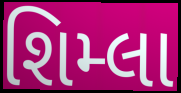
શિમ્લા